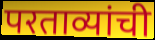
परताव्यांची